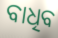
ବାଧିବ